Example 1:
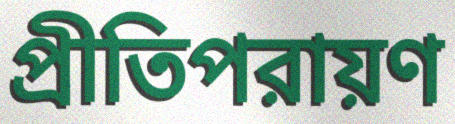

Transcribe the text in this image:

প্রীতিপরায়ণ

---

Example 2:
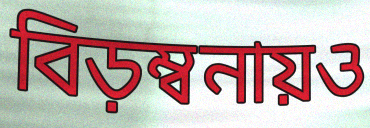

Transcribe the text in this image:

বিড়ম্বনায়ও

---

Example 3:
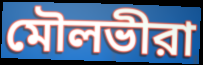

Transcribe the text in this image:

মৌলভীরা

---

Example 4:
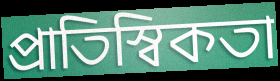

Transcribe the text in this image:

প্রাতিস্বিকতা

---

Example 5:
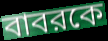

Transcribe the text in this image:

বাবরকে